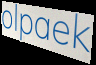
olpaek